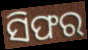
ସିଫର